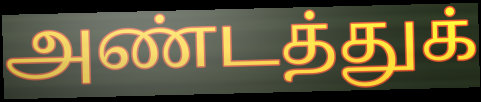
அண்டத்துக்